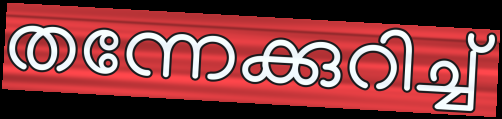
തന്നേക്കുറിച്ച്